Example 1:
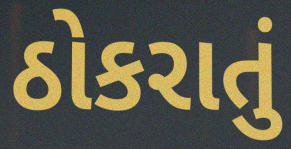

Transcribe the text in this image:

ઠોકરાતું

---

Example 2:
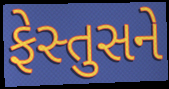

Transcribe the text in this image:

ફેસ્તુસને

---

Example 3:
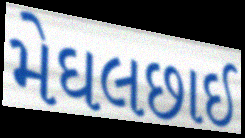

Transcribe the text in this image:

મેઘલછાઈ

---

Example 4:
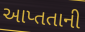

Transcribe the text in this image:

આપ્તતાની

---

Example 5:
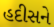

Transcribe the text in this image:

હદીસને